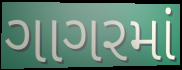
ગાગરમાં